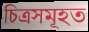
চিত্ৰসমূহত